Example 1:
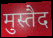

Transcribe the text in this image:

मुस्तैद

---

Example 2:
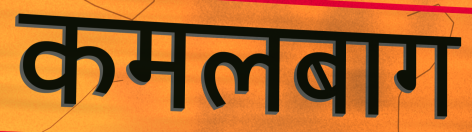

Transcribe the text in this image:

कमलबाग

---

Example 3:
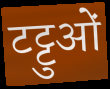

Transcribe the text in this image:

टट्टुओं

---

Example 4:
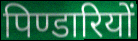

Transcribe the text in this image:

पिण्डारियों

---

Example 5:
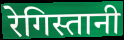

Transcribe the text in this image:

रेगिस्तानी